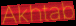
Akhtab